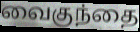
வைகுந்தை